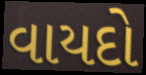
વાયદો